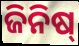
ଜିନିଷ୍